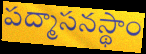
పద్మాసనస్థాం